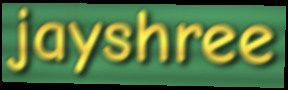
jayshree